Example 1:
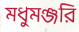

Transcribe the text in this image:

মধুমঞ্জরি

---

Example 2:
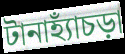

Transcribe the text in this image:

টানাহ্যাঁচড়া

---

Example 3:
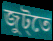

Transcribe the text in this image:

জুট্তে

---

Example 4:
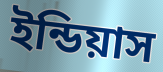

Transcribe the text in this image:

ইন্ডিয়াস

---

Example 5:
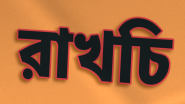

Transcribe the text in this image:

রাখচি